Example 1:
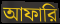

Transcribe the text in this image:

আফারি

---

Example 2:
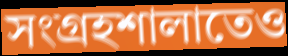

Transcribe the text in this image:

সংগ্রহশালাতেও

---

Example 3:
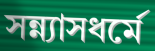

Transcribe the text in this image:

সন্ন্যাসধর্মে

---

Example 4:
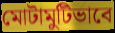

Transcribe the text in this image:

মোটামুটিভাবে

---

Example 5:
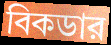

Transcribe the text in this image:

বিকডার